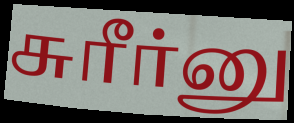
சுரீர்னு